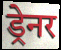
ड्रेनर